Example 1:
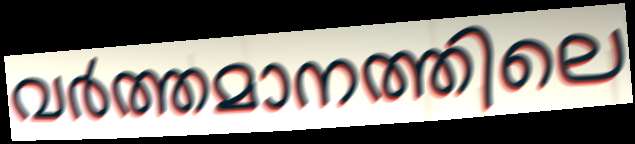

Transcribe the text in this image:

വർത്തമാനത്തിലെ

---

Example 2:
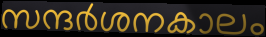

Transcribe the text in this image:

സന്ദർശനകാലം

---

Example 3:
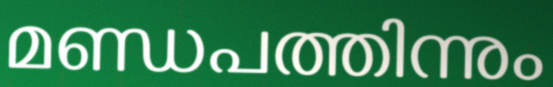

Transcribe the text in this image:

മണ്ഡപത്തിന്നും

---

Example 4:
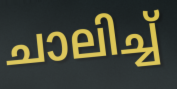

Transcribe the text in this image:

ചാലിച്ച്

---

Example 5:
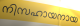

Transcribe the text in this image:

നിസഹായനായ